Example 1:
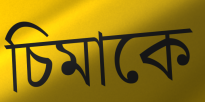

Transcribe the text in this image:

চিমাকে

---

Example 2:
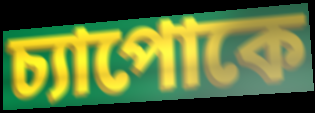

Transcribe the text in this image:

চ্যাপোকে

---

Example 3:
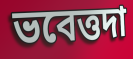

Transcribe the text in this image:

ভবেত্তদা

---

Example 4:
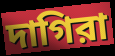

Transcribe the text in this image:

দাগিরা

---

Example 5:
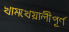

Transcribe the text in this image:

খামখেয়ালীপূর্ণ